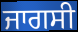
ਜਾਗਸੀ